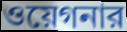
ওয়েগনার